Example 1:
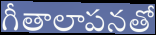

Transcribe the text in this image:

గీతాలాపనతో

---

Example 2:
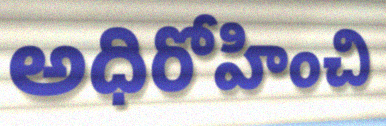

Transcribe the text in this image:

అధిరోహించి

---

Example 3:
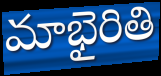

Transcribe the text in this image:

మాభైరితి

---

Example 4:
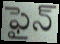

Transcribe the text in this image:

ఫైన్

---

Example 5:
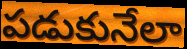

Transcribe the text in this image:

పడుకునేలా